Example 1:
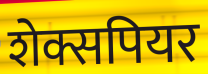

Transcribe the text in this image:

शेक्सपियर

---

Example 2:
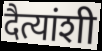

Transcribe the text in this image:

दैत्यांशी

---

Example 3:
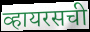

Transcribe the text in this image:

व्हायरसची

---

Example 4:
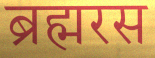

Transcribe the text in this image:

ब्रह्मरस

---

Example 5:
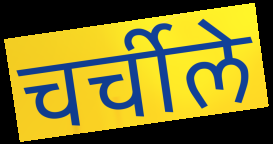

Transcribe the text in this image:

चर्चीले